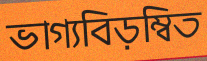
ভাগ্যবিড়ম্বিত